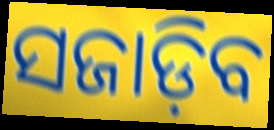
ସଜାଡ଼ିବ